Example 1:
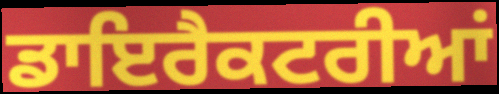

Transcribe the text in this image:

ਡਾਇਰੈਕਟਰੀਆਂ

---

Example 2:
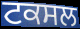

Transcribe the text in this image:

ਟਕਸਲ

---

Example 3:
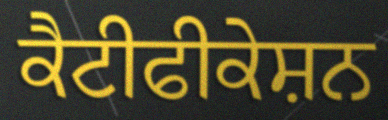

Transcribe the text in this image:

ਕੈਟੀਫੀਕੇਸ਼ਨ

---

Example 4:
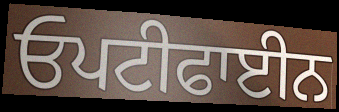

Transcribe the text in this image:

ਓਪਟੀਫਾਈਨ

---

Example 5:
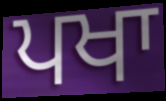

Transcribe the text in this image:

ਪਖਾ